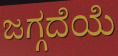
ಜಗ್ಗದೆಯೆ